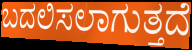
ಬದಲಿಸಲಾಗುತ್ತದೆ